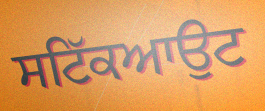
ਸਟਿੱਕਆਉਟ